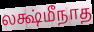
லக்ஷ்மீநாத